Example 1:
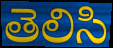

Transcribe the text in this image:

తెలిసి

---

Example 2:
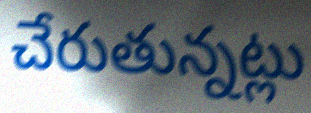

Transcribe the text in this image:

చేరుతున్నట్లు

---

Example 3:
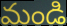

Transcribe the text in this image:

మండి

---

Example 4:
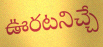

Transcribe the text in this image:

ఊరటనిచ్చే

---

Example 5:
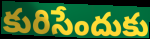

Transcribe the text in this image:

కురిసేందుకు